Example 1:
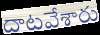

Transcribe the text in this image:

దాటవేశారు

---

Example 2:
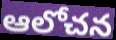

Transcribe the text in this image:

ఆలోచన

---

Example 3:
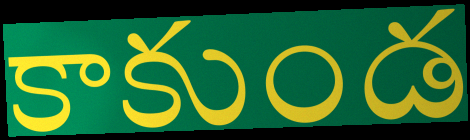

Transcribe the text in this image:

కాకుండ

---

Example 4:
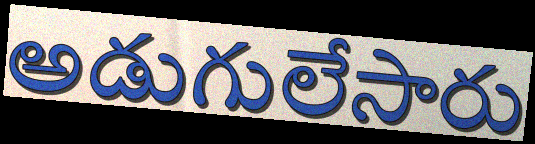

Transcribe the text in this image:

అడుగులేసారు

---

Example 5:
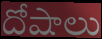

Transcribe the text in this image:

దోషాలు